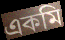
একমি